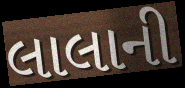
લાલાની